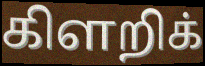
கிளறிக்